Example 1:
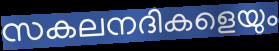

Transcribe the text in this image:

സകലനദികളെയും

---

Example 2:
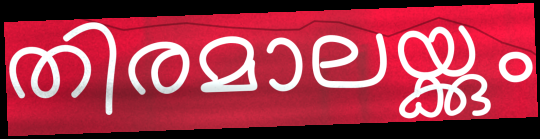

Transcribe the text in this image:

തിരമാലയ്ക്കും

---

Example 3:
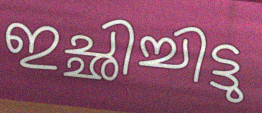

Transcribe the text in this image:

ഇച്ഛിച്ചിട്ടു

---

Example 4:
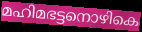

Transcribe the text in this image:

മഹിമഭട്ടനൊഴികെ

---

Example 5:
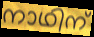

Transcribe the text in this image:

നാഥിന്